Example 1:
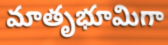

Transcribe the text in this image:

మాతృభూమిగా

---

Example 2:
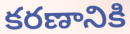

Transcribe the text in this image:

కరణానికి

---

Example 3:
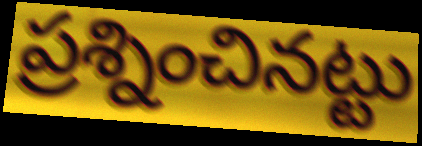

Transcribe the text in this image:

ప్రశ్నించినట్టు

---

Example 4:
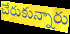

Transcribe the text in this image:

చేరుకున్నారు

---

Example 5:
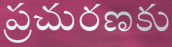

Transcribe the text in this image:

ప్రచురణకు